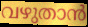
വഴുതാൻ